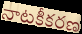
నాటకీకరణ